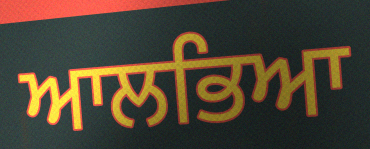
ਆਲਭਿਆ